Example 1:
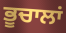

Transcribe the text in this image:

ਭੂਚਾਲਾਂ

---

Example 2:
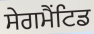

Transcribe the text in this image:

ਸੇਗਮੈਂਟਿਡ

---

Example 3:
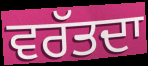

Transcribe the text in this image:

ਵਰੱਤਦਾ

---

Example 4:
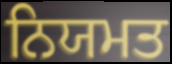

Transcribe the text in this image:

ਨਿਯਮਤ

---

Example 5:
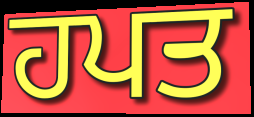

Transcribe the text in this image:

ਹਪਤ